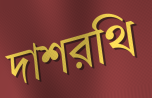
দাশরথি